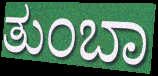
ತುಂಬಾ